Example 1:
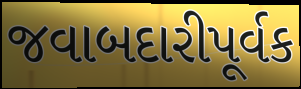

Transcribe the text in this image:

જવાબદારીપૂર્વક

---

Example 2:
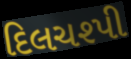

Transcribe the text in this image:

દિલચશ્પી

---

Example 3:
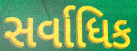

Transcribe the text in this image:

સર્વાધિક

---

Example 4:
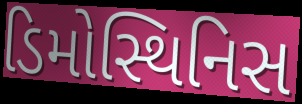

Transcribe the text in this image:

ડિમોસ્થિનિસ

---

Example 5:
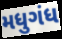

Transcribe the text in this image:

મધુગંધ